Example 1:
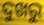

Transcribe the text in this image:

ଦୁଖରୁ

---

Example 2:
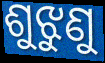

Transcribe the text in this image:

ଶୁଝୁଣୁ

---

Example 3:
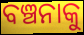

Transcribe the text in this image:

ବଞ୍ଚନାକୁ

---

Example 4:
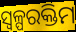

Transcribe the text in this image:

ସ୍ୱଳ୍ପରକ୍ତିମ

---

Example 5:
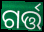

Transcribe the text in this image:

ଗର୍ତ୍ତ